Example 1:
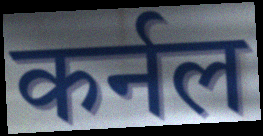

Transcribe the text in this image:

कर्नल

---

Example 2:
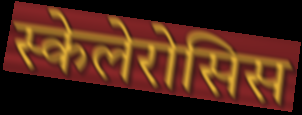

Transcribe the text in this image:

स्केलेरोसिस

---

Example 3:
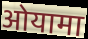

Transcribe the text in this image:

ओयामा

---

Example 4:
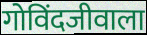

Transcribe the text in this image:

गोविंदजीवाला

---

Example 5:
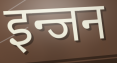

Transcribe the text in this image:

इन्जन